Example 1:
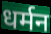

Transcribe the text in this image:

धर्मन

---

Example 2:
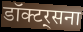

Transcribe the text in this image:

डॉक्टर्सना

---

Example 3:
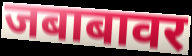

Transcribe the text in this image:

जबाबावर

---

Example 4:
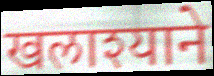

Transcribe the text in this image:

खलाश्याने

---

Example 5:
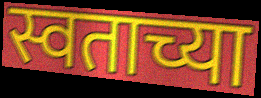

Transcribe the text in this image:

स्वताच्या